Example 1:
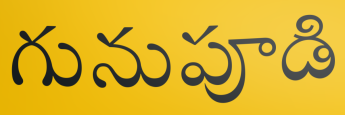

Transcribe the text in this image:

గునుపూడి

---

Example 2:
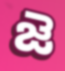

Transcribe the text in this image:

జె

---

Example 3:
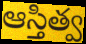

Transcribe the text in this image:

ఆస్తిత్వ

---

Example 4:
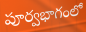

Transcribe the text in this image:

పూర్వభాగంలో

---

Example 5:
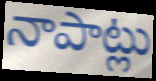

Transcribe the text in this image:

నాపాట్లు